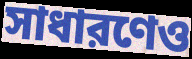
সাধারণেও